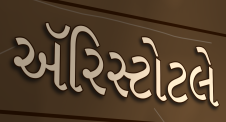
ઍરિસ્ટોટલે